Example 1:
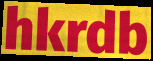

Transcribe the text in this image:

hkrdb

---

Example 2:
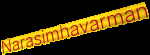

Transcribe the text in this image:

Narasimhavarman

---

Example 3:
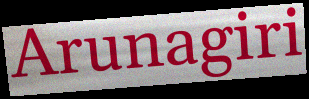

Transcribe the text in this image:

Arunagiri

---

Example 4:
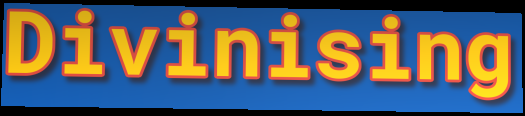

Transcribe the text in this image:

Divinising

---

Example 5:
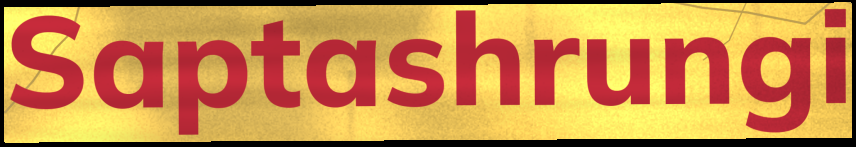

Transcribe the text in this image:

Saptashrungi